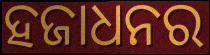
ହଜାଧନର